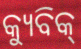
କ୍ୟୁବିକ୍